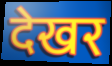
देखर